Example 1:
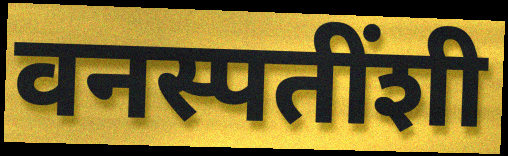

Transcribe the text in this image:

वनस्पतींशी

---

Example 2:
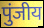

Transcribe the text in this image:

पुंजीय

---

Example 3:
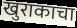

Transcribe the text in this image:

खुराकाचा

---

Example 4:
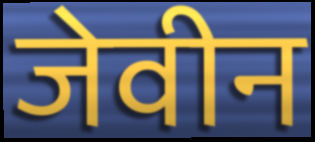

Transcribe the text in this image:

जेवीन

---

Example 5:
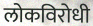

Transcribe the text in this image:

लोकविरोधी